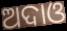
ଅଦାଓ